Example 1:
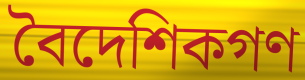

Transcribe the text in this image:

বৈদেশিকগণ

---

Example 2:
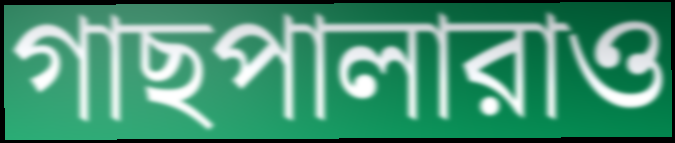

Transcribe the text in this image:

গাছপালারাও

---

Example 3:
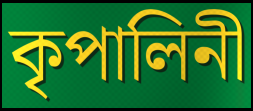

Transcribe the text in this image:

কৃপালিনী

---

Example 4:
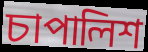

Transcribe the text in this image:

চাপালিশ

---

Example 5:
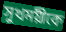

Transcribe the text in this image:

সুখময়ীকে